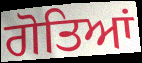
ਗੋਤਿਆਂ